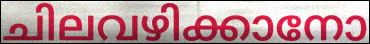
ചിലവഴിക്കാനോ